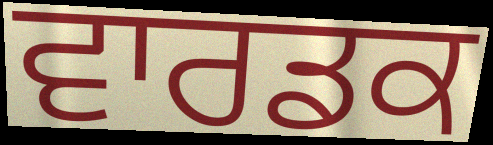
ਵਾਰਡਕ